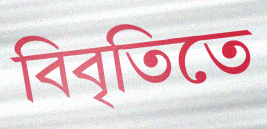
বিবৃতিতে